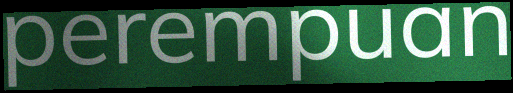
perempuan